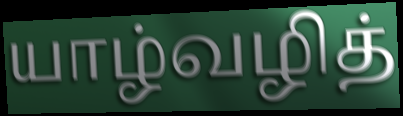
யாழ்வழித்